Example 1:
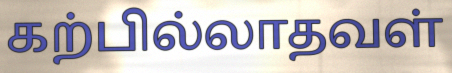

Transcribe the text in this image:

கற்பில்லாதவள்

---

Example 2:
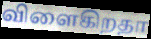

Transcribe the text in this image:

விளைகிறதா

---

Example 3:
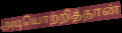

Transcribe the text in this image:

அடியொற்றித்தான்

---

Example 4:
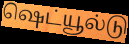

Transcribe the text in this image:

ஷெட்யூல்டு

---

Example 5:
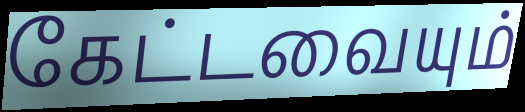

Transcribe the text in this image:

கேட்டவையும்